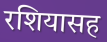
रशियासह